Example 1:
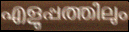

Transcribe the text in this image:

എളുപ്പത്തിലും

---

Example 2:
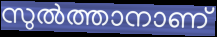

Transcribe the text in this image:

സുൽത്താനാണ്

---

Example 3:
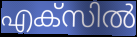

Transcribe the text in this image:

എക്സിൽ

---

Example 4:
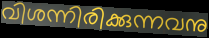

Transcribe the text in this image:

വിശന്നിരിക്കുന്നവനു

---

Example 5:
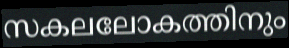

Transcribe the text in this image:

സകലലോകത്തിനും